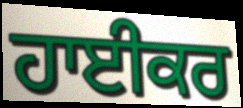
ਹਾਈਕਰ